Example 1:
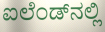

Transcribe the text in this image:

ಐಲೆಂಡ್‌ನಲ್ಲಿ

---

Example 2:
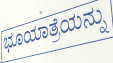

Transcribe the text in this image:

ಭೂಯಾತ್ರೆಯನ್ನು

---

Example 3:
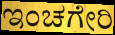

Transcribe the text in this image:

ಇಂಚಗೇರಿ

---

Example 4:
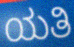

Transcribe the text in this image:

ಯತಿ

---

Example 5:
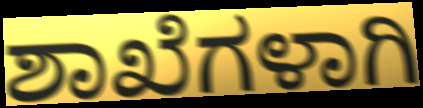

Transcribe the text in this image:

ಶಾಖೆಗಳಾಗಿ